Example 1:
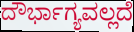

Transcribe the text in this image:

ದೌರ್ಭಾಗ್ಯವಲ್ಲದೆ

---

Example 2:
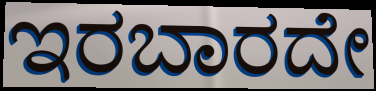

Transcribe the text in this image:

ಇರಬಾರದೇ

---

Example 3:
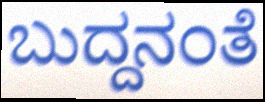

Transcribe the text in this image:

ಬುದ್ದನಂತೆ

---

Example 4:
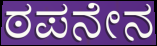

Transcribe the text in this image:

ಠಪನೇನ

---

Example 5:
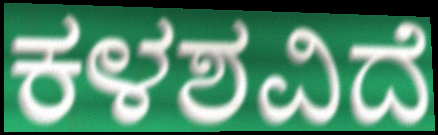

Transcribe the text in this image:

ಕಳಶವಿದೆ